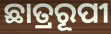
ଛାତ୍ରରୂପୀ